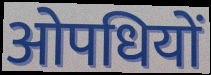
ओपधियों